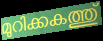
മുറിക്കകത്തു്